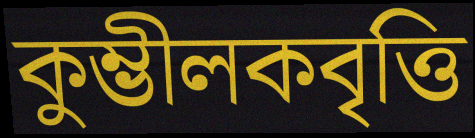
কুম্ভীলকবৃত্তি